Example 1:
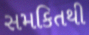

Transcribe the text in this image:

સમકિતથી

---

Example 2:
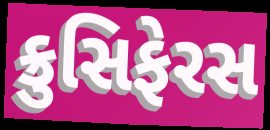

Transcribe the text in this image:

ક્રુસિફેરસ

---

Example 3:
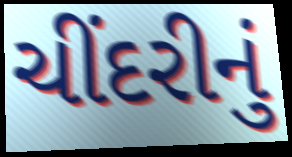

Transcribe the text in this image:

ચીંદરીનું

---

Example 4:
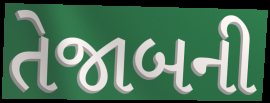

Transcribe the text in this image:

તેજાબની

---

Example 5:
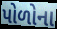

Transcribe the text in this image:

પોળોના